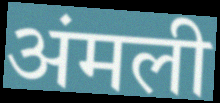
अंमली